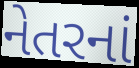
નેતરનાં